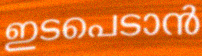
ഇടപെടാൻ